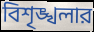
বিশৃঙ্খলার